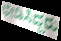
ಛೇಡಿಸಿದ್ದರು